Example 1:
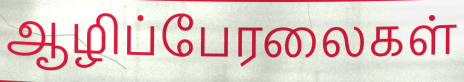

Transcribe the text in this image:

ஆழிப்பேரலைகள்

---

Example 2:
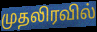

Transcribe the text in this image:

முதலிரவில்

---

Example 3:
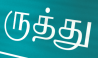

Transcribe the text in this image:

ருத்து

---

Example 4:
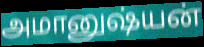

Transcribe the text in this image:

அமானுஷ்யன்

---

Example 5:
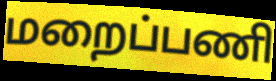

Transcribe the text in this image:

மறைப்பணி